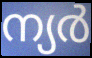
ന്യർ